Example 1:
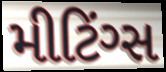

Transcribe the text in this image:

મીટિંગ્સ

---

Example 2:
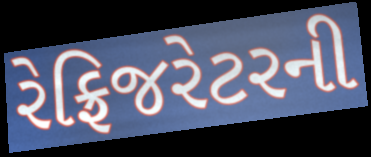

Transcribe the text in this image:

રેફ્રિજરેટરની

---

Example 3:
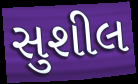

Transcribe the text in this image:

સુશીલ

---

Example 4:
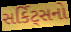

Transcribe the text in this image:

સર્કિટ્સનો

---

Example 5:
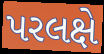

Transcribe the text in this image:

પરલક્ષે